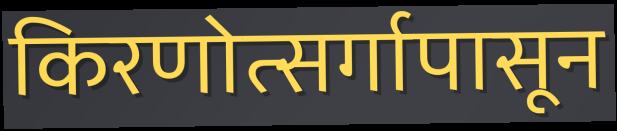
किरणोत्सर्गापासून